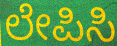
ಲೇಪಿಸಿ